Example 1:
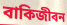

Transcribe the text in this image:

বাকিজীবন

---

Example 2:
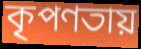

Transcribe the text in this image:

কৃপণতায়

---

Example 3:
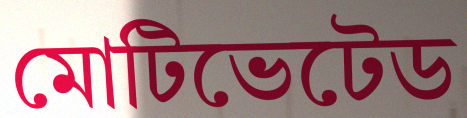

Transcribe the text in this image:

মোটিভেটেড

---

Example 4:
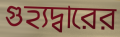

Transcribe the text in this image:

গুহ্যদ্বারের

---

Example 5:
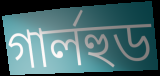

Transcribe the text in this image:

গার্লহুড